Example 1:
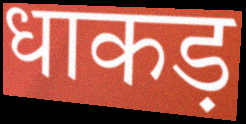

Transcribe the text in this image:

धाकड़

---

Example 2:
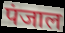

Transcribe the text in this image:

पंजाल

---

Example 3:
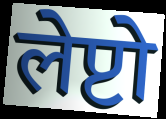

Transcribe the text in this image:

लेप्टो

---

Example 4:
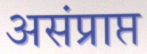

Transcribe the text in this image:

असंप्राप्त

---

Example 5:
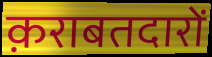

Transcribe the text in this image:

क़राबतदारों